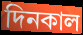
দিনকাল